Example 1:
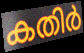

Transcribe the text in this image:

കതിർ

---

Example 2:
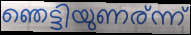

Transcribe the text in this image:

ഞെട്ടിയുണര്ന്ന്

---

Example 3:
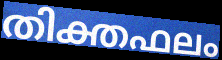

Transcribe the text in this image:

തിക്തഫലം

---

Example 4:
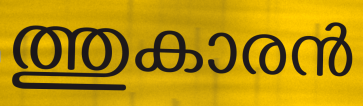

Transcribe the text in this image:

ത്തുകാരൻ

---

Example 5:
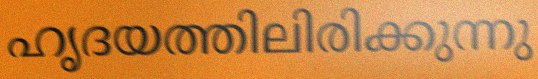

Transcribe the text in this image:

ഹൃദയത്തിലിരിക്കുന്നു